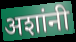
अशांनी